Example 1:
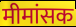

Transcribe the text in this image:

मीमांसक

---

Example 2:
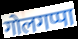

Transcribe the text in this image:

गोलगप्पा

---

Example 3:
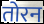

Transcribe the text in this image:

तोरन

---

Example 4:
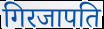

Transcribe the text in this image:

गिरजापति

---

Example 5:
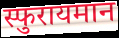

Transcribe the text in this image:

स्फुरायमान